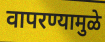
वापरण्यामुळे